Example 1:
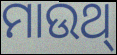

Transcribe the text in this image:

ମାଉଥ୍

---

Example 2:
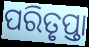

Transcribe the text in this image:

ପରିତୃପ୍ତା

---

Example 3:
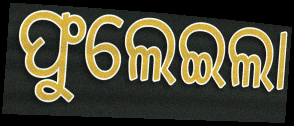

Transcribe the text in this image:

ଫୁଲେଇଲା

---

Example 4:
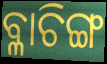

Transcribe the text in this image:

ବ୍ଳାଚିଙ୍ଗ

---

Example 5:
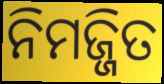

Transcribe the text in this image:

ନିମଜ୍ଜିତ